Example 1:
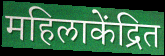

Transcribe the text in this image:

महिलाकेंद्रित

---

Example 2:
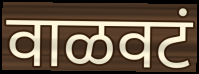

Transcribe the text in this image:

वाळवटं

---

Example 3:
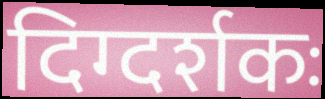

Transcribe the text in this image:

दिग्दर्शकः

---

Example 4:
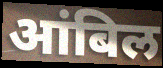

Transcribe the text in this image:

आंबिल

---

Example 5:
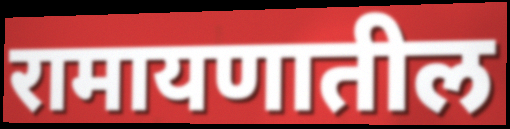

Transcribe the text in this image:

रामायणातील